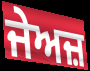
ਜੇਅਜ਼